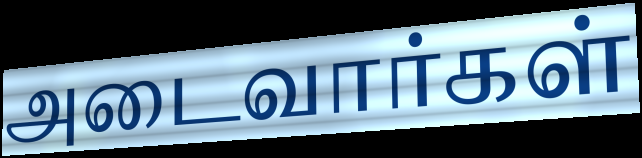
அடைவார்கள்